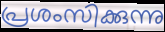
പ്രശംസിക്കുന്നു